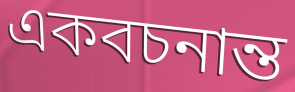
একবচনান্ত